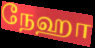
நேஹா